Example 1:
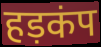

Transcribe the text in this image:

हड़कंप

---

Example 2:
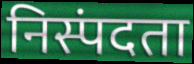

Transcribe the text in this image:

निस्पंदता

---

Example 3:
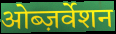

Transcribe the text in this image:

ओब्ज़र्वेशन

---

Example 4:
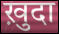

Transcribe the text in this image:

ख़ुदा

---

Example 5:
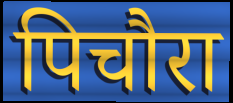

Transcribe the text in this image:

पिचौरा